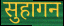
सुहागन